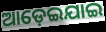
ଆଡ଼େଇଯାଇ